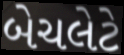
બેચલેટે